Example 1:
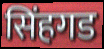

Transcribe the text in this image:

सिंहगड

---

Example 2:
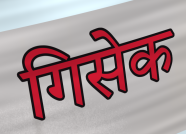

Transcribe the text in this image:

गिसेक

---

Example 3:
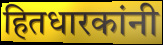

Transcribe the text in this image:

हितधारकांनी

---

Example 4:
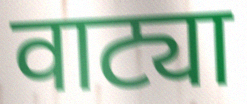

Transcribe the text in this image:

वाट्या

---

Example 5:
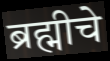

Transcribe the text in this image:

ब्रह्मीचे